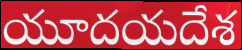
యూదయదేశ